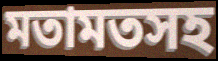
মতামতসহ